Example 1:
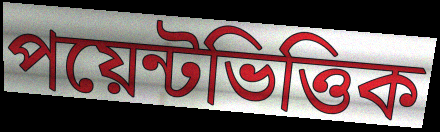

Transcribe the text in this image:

পয়েন্টভিত্তিক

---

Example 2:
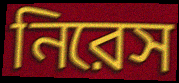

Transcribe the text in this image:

নিরেস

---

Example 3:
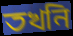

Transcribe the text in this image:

তখনি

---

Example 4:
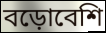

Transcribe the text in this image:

বড়োবেশি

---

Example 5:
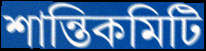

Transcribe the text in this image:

শান্তিকমিটি